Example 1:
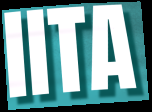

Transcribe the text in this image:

IITA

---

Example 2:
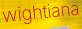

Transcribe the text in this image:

wightiana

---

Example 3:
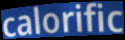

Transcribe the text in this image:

calorific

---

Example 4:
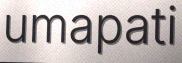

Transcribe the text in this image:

umapati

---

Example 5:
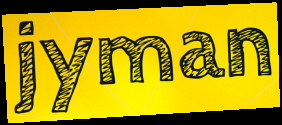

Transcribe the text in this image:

jyman